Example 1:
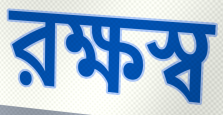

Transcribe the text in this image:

রক্ষস্ব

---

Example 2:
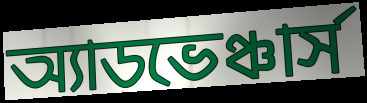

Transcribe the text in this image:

অ্যাডভেঞ্চার্স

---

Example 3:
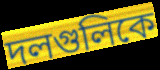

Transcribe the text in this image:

দলগুলিকে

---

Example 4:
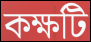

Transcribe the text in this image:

কক্ষটি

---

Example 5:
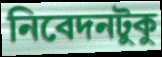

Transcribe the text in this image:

নিবেদনটুকু